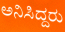
ಅನಿಸಿದ್ದರು